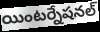
యింటర్నేషనల్